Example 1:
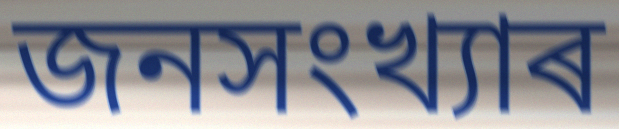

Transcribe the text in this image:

জনসংখ্যাৰ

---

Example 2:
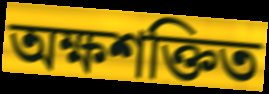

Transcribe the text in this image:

অক্ষশক্তিত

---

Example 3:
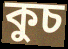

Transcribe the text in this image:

কুচ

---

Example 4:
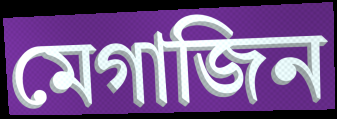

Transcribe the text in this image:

মেগাজিন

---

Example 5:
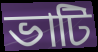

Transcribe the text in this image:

ভাটি